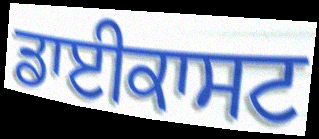
ਡਾਈਕਾਸਟ